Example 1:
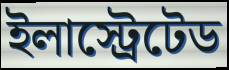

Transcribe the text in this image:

ইলাস্ট্রেটেড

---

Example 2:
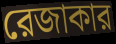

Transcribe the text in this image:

রেজাকার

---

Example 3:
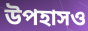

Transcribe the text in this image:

উপহাসও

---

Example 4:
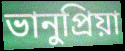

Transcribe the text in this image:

ভানুপ্রিয়া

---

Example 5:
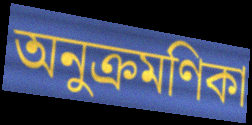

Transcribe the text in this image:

অনুক্রমণিকা